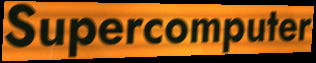
Supercomputer